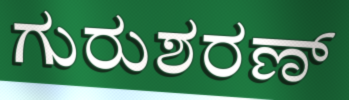
ಗುರುಶರಣ್